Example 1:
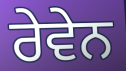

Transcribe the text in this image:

ਰੇਵੇਨ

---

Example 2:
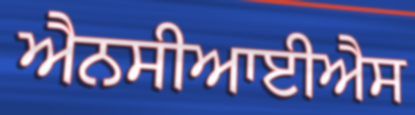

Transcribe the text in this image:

ਐਨਸੀਆਈਐਸ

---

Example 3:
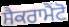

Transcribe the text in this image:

ਸੈਕਰਾਮੈਂਟੋ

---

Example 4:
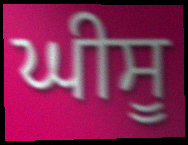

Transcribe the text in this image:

ਘੀਸੂ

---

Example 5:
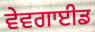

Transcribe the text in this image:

ਵੇਵਗਾਈਡ